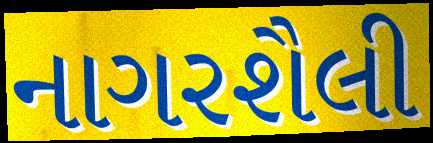
નાગરશૈલી